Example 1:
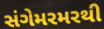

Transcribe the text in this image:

સંગેમરમરથી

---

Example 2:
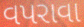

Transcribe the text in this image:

વપરાવા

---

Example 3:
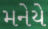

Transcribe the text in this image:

મનેયે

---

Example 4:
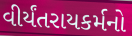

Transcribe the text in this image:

વીર્યંતરાયકર્મનો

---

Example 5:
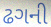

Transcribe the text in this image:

ઢગની